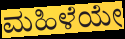
ಮಹಿಳೆಯೇ